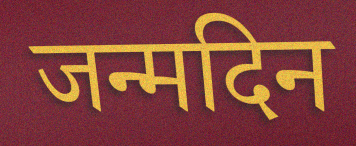
जन्मदिन